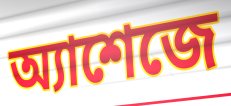
অ্যাশেজে